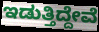
ಇಡುತ್ತಿದ್ದೇವೆ